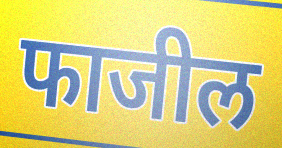
फाजील